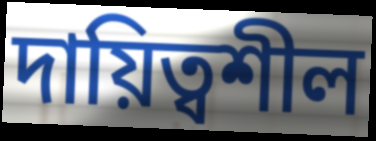
দায়িত্বশীল